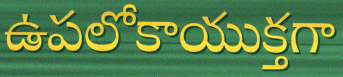
ఉపలోకాయుక్తగా